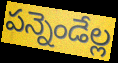
పన్నెండేల్ల